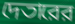
দেতারের